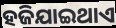
ହଜିଯାଇଥାଏ